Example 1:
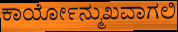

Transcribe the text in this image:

ಕಾರ್ಯೋನ್ಮುಖವಾಗಲಿ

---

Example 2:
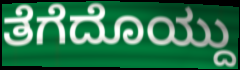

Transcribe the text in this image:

ತೆಗೆದೊಯ್ದು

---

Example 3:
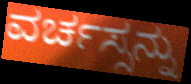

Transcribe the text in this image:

ವರ್ಚಸ್ಸನ್ನು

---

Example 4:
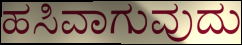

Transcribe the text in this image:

ಹಸಿವಾಗುವುದು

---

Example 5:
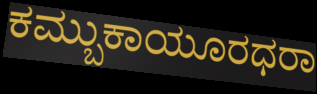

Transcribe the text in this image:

ಕಮ್ಬುಕಾಯೂರಧರಾ